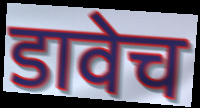
डावेच